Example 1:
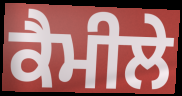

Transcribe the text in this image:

ਕੈਮੀਲੇ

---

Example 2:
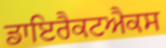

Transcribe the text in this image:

ਡਾਇਰੈਕਟਐਕਸ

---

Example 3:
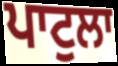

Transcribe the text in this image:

ਪਾਟੁਲਾ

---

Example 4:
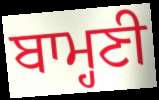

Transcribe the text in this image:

ਬਾਮ੍ਹਣੀ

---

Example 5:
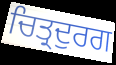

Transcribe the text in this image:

ਚਿਤ੍ਰਦੁਰਗ